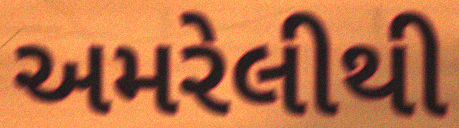
અમરેલીથી